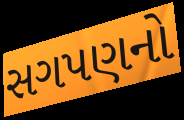
સગપણનો